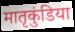
मातृकुंडिया